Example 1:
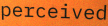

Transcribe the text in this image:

perceived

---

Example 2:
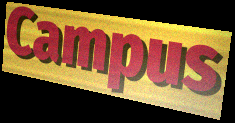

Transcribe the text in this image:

Campus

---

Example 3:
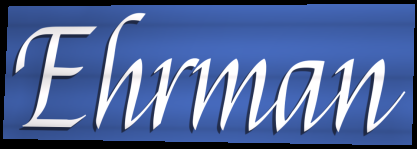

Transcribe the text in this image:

Ehrman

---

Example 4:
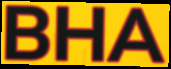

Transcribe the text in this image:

BHA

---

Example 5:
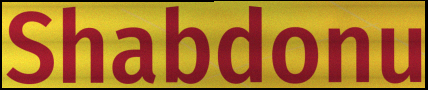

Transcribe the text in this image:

Shabdonu